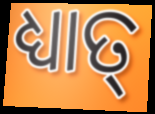
ଧ୍ୟାତ୍